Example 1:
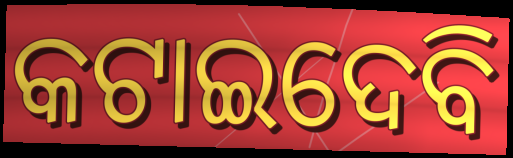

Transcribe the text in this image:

କଟାଇଦେବି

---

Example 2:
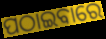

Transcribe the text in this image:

ପଠାଇବାରେ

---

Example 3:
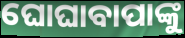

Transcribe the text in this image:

ଘୋଘାବାପାଙ୍କୁ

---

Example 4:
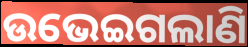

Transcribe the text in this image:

ଉଭେଇଗଲାଣି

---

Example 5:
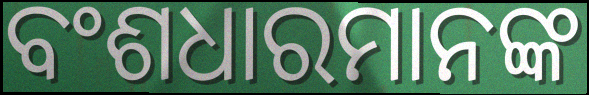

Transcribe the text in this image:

ବଂଶଧାରମାନଙ୍କ